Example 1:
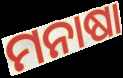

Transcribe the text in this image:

ମନାଷା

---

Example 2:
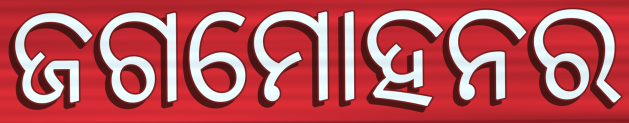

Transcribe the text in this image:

ଜଗମୋହନର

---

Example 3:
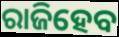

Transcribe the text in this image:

ରାଜିହେବ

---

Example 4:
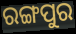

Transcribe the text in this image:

ରଙ୍ଗପୁର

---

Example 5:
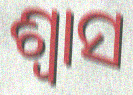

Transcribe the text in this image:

ଶ୍ୱାସ